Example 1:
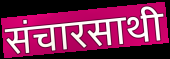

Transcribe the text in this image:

संचारसाथी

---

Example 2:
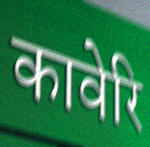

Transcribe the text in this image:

कावेरि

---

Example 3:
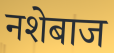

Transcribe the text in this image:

नशेबाज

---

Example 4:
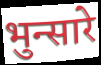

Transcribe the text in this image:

भुन्सारे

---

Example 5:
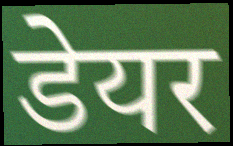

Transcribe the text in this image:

डेयर